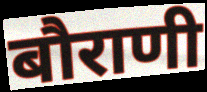
बौराणी